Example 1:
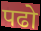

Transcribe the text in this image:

पढो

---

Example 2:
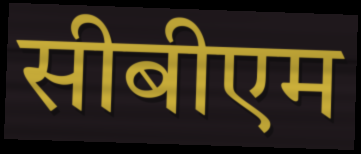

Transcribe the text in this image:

सीबीएम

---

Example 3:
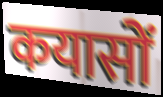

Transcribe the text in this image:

कयासों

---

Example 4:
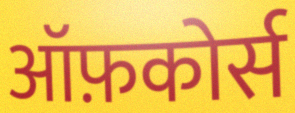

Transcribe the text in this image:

ऑफ़कोर्स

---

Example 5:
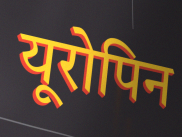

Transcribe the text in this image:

यूरोपिन